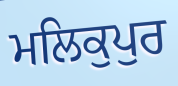
ਮਲਿਕੁਪੁਰ